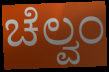
ಚೆಲ್ವಂ